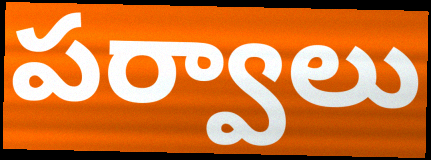
పర్వాలు